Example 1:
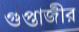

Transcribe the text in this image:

গুপ্তাজীর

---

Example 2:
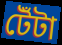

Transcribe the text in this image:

টেঁটা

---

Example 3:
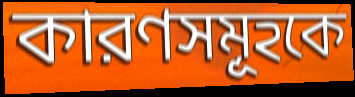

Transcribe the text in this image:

কারণসমূহকে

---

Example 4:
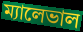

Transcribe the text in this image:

ম্যালেভাল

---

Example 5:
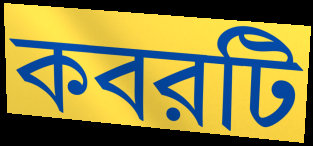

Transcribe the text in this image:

কবরটি